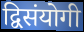
द्विसंयोगी